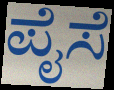
ಪೈಸೆ